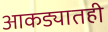
आकड्यातही